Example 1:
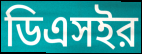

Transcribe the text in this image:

ডিএসইর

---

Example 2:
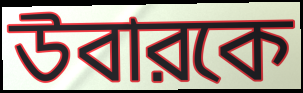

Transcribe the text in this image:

উবারকে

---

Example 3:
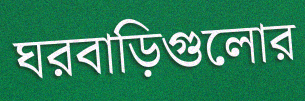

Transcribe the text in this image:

ঘরবাড়িগুলোর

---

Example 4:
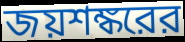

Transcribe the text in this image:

জয়শঙ্করের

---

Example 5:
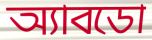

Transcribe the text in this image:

অ্যাবডো